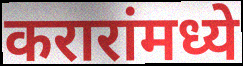
करारांमध्ये